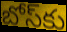
బోస్‌కు